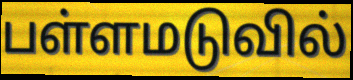
பள்ளமடுவில்